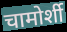
चामोर्शी